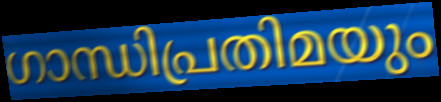
ഗാന്ധിപ്രതിമയും